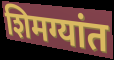
शिमग्यांत